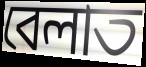
বেলাত